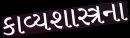
કાવ્યશાસ્ત્રના